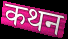
कथन